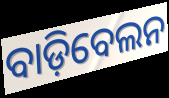
ବାଡ଼ିବେଲନ